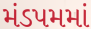
મંડપમમાં